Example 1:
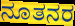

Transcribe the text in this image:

ನೂತನರ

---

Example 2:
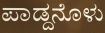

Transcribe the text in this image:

ಪಾಡ್ದನೊಳು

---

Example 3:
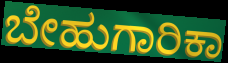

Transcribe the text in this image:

ಬೇಹುಗಾರಿಕಾ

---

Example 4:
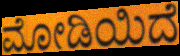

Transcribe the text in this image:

ಮೋಡಿಯಿದೆ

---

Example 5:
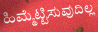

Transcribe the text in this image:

ಹಿಮ್ಮೆಟ್ಟಿಸುವುದಿಲ್ಲ